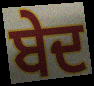
ਬੇਦ